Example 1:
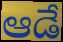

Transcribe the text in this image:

ఆడే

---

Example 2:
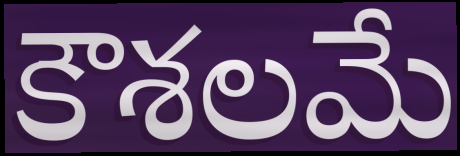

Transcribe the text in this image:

కౌశలమే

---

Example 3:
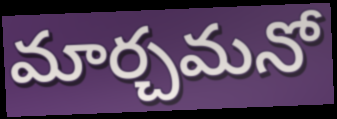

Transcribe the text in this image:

మార్చమనో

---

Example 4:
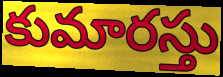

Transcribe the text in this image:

కుమారస్తు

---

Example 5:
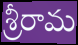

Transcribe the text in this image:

శ్రీరామ